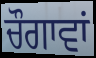
ਚੌਗਾਵਾਂ